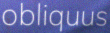
obliquus